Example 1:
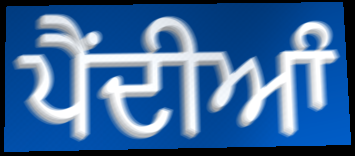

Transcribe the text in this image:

ਪੈੰਦੀਆੰ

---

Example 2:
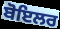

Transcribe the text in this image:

ਬੋਇਲਰ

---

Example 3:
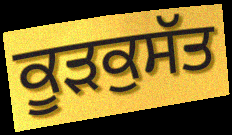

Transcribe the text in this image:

ਕੂੜਕੁਸੱਤ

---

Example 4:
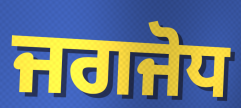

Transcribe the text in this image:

ਜਗਜੋਧ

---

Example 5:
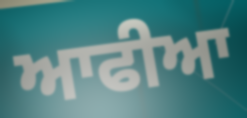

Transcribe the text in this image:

ਆਫੀਆ